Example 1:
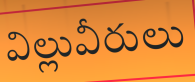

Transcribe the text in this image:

విల్లువీరులు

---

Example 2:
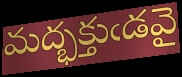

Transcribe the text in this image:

మద్భక్తుఁడవై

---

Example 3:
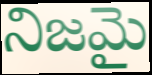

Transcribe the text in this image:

నిజమై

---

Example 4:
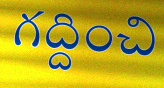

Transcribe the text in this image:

గద్దించి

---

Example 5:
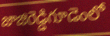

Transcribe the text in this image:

జాజిరెడ్డిగూడెంలో